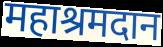
महाश्रमदान